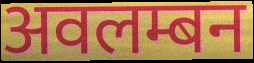
अवलम्बन